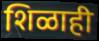
शिळाही